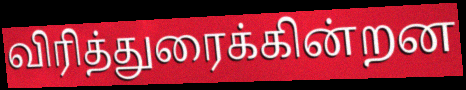
விரித்துரைக்கின்றன